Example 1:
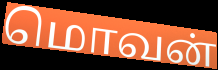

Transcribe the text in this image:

மொவன்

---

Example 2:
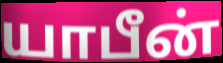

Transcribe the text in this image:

யாபீன்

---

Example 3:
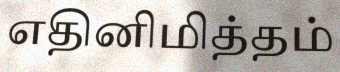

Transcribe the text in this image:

எதினிமித்தம்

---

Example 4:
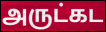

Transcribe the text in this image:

அருட்கட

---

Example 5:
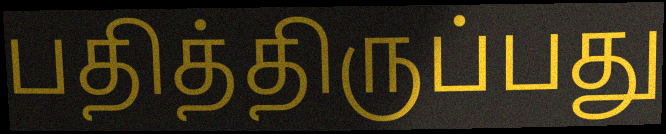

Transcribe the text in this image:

பதித்திருப்பது